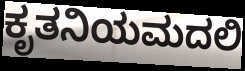
ಕೃತನಿಯಮದಲಿ